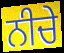
ਨੀਚੇ